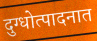
दुग्धोत्पादनात